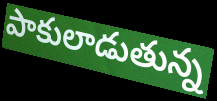
పాకులాడుతున్న